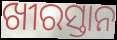
ଖୀରସ୍ତାନ